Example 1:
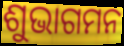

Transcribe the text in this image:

ଶୁଭାଗମନ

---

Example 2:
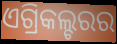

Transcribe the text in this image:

ଏଗ୍ରିକଲ୍ଚରର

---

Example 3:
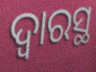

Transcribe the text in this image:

ଦ୍ବାରସ୍ଥ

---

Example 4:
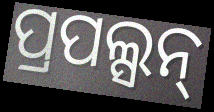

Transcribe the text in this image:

ପ୍ରପଲ୍ସନ୍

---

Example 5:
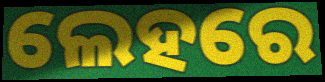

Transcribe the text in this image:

ଲେହରେ